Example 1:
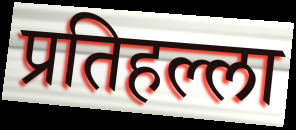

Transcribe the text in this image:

प्रतिहल्ला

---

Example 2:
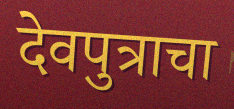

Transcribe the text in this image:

देवपुत्राचा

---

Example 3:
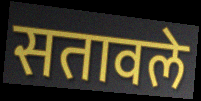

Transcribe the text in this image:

सतावले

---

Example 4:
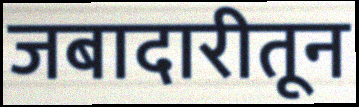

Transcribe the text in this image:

जबादारीतून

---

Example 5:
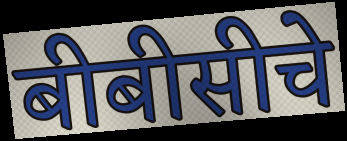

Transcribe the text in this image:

बीबीसीचे